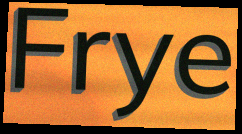
Frye